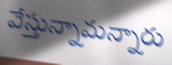
వేస్తున్నామన్నారు